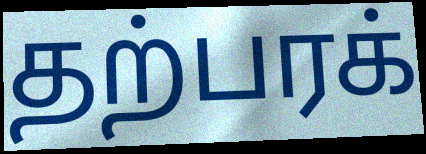
தற்பரக்